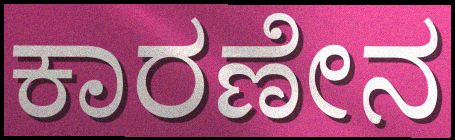
ಕಾರಣೇನ